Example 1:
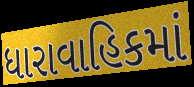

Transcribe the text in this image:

ધારાવાહિકમાં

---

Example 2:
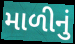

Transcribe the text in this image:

માળીનું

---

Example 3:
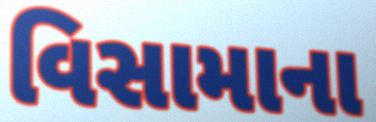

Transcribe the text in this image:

વિસામાના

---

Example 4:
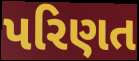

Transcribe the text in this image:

પરિણત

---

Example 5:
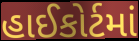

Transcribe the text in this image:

હાઈકોર્ટમાં